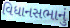
વિધાનસભાનું